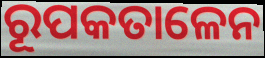
ରୂପକତାଳେନ